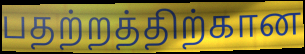
பதற்றத்திற்கான